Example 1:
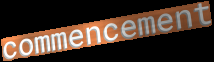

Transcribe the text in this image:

commencement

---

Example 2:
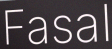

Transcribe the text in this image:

Fasal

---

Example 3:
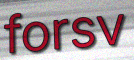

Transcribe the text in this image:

forsv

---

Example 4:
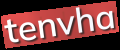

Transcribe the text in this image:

tenvha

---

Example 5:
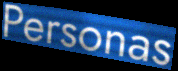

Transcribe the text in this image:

Personas